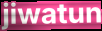
jiwatun